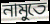
নামুতে